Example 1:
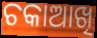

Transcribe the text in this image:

ଚକାଆଖି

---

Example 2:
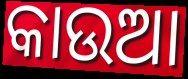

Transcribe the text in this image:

କାଉଆ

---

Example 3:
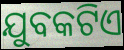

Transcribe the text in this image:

ଯୁବକଟିଏ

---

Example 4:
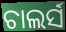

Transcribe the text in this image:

ଚାଲର୍ସ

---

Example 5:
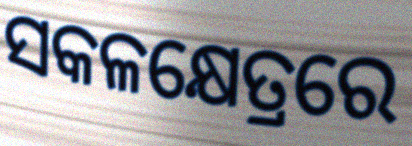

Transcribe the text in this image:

ସକଳକ୍ଷେତ୍ରରେ